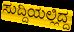
ಸುದ್ದಿಯಲ್ಲಿದ್ದ